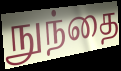
நுந்தை